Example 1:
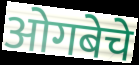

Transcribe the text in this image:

ओगबेचे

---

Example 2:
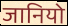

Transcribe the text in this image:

जानियो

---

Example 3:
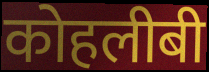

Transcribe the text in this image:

कोहलीबी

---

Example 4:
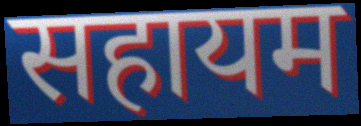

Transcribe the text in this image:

सहायम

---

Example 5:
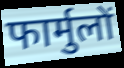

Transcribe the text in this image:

फार्मुलों